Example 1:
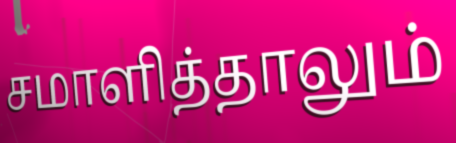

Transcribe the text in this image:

சமாளித்தாலும்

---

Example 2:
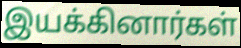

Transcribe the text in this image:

இயக்கினார்கள்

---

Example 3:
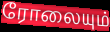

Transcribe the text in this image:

ரோலையும்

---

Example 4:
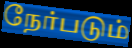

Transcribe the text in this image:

நேர்படும்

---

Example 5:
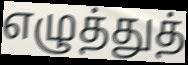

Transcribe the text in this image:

எழுத்துத்